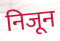
निजून